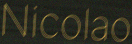
Nicolao